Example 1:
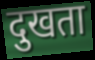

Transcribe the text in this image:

दुखता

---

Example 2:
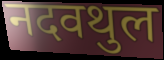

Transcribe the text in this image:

नदवथुल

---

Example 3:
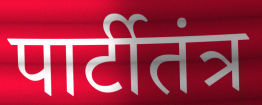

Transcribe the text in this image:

पार्टीतंत्र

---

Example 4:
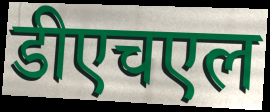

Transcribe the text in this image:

डीएचएल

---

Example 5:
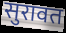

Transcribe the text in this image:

सुरावत